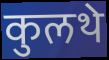
कुलथे